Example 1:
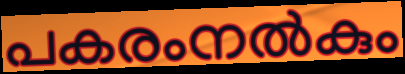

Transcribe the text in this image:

പകരംനൽകും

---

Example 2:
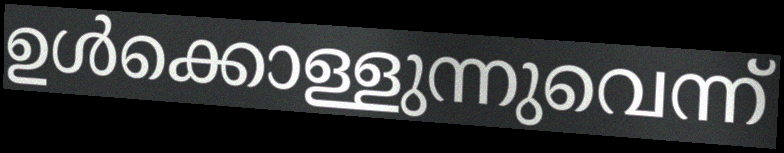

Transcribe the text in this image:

ഉൾക്കൊള്ളുന്നുവെന്ന്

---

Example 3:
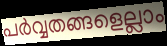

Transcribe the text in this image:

പർവ്വതങ്ങളെല്ലാം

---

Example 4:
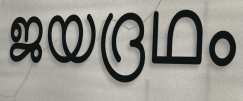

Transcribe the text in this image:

ജയദ്രഥം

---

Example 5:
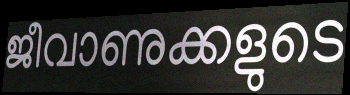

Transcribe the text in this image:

ജീവാണുക്കളുടെ